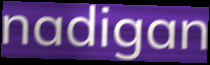
nadigan